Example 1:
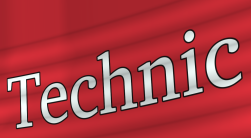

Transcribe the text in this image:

Technic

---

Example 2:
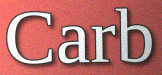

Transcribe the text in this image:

Carb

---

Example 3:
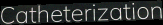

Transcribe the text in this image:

Catheterization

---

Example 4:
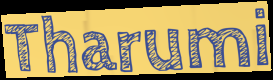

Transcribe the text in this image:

Tharumi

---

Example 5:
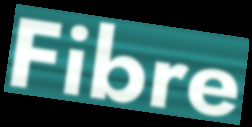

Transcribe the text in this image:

Fibre